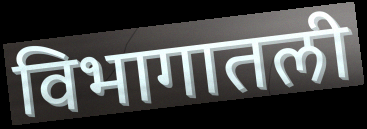
विभागातली